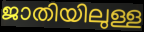
ജാതിയിലുള്ള